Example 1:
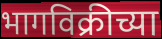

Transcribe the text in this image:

भागविक्रीच्या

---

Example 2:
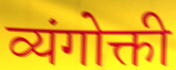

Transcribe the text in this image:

व्यंगोक्ती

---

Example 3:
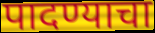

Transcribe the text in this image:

पादण्याचा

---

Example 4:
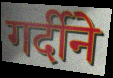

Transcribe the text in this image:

गर्दीने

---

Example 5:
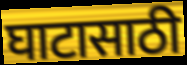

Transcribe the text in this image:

घाटासाठी